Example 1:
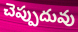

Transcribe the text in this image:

చెప్పుదువు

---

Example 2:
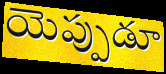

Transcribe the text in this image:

యెప్పుడూ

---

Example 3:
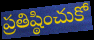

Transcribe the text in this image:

ప్రతిష్ఠించుకో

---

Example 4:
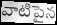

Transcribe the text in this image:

వాటిపైన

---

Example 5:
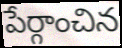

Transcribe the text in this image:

పేర్గాంచిన